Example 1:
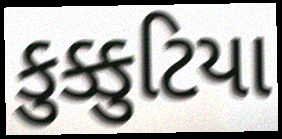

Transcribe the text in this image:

કુક્કુટિયા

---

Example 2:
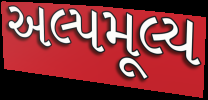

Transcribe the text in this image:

અલ્પમૂલ્ય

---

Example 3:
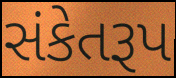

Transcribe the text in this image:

સંકેતરૂપ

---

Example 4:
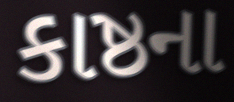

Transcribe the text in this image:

કાષ્ઠના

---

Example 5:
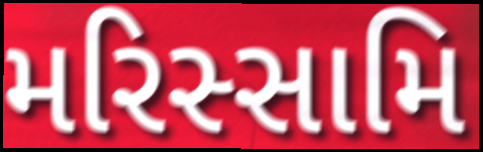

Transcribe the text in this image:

મરિસ્સામિ